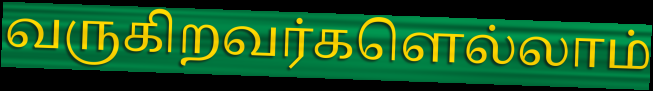
வருகிறவர்களெல்லாம்